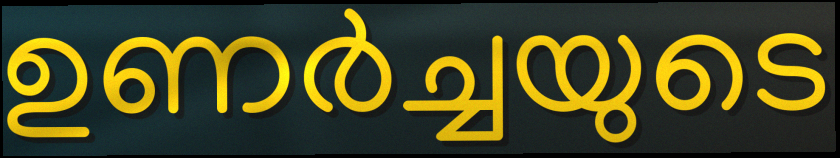
ഉണർച്ചയുടെ